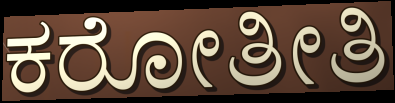
ಕರೋತೀತಿ